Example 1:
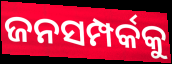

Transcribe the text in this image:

ଜନସମ୍ପର୍କକୁ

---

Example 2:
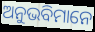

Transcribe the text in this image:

ଅନୁଭବିମାନେ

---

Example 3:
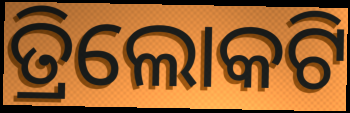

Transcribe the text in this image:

ତ୍ରିଲୋକଟି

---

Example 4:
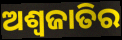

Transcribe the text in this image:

ଅଶ୍ୱଜାତିର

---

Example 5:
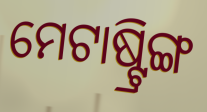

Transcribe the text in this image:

ମେଟାଷ୍ଟ୍ରିଙ୍ଗ